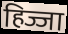
हिज्जा